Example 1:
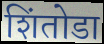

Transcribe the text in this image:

शिंतोडा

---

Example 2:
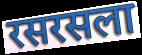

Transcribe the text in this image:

रसरसला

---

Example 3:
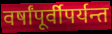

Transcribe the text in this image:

वर्षांपूर्वीपर्यन्त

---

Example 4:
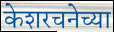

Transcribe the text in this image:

केशरचनेच्या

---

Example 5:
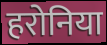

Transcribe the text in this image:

हरोनिया